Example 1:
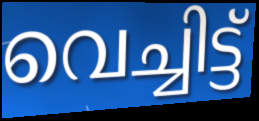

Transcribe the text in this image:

വെച്ചിട്ട്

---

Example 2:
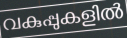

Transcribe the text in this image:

വകുപ്പുകളിൽ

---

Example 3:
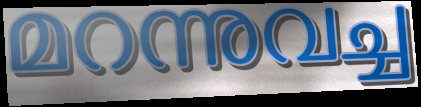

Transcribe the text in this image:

മറന്നുവച്ച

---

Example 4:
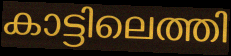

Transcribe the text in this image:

കാട്ടിലെത്തി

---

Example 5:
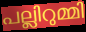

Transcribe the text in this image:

പല്ലിറുമ്മി